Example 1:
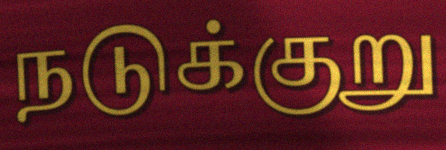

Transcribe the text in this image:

நடுக்குறு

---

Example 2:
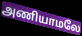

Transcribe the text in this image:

அணியாமலே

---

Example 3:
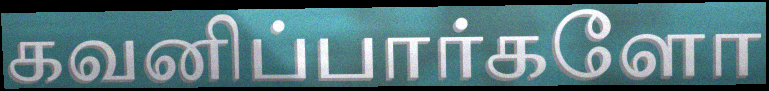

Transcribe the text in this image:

கவனிப்பார்களோ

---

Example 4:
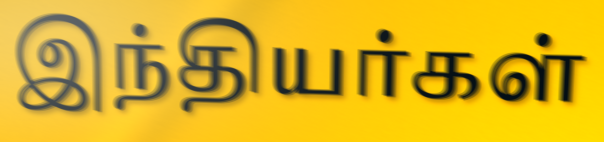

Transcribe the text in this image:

இந்தியர்கள்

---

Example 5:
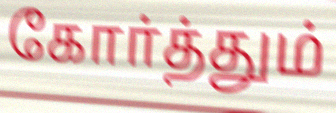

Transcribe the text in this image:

கோர்த்தும்